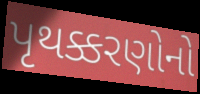
પૃથક્કરણોનો